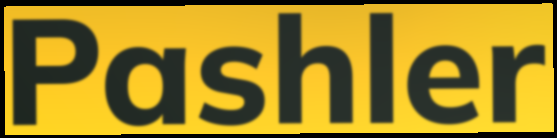
Pashler